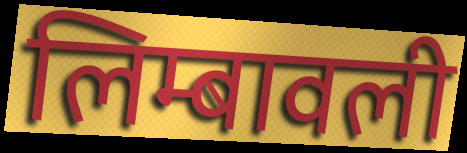
लिम्बावली